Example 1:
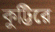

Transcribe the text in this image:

কুট্টিরে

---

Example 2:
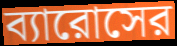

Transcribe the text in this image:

ব্যারোসের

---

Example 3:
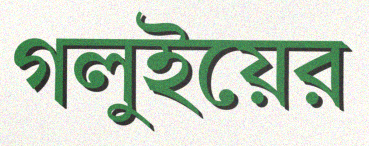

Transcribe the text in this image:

গলুইয়ের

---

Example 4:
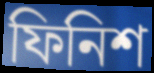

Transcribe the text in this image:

ফিনিশ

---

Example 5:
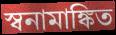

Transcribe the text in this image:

স্বনামাঙ্কিত